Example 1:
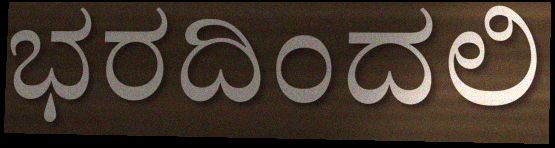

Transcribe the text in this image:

ಭರದಿಂದಲಿ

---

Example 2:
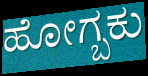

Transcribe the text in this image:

ಹೋಗ್ಬಕು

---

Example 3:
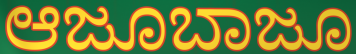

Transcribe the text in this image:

ಆಜೂಬಾಜೂ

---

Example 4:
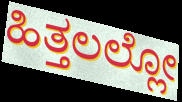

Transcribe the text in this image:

ಹಿತ್ತಲಲ್ಲೋ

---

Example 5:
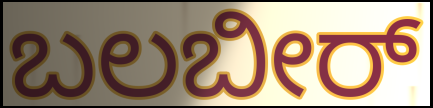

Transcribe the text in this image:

ಬಲಬೀರ್